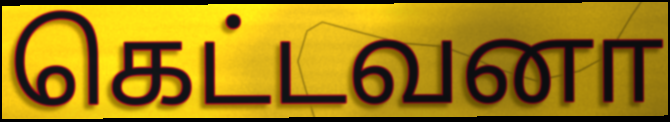
கெட்டவனா